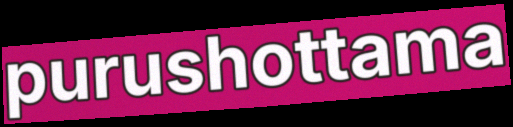
purushottama